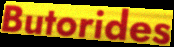
Butorides